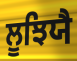
ਲੂਝਿਯੈ